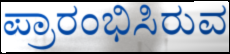
ಪ್ರಾರಂಭಿಸಿರುವ